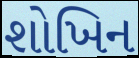
શોખિન